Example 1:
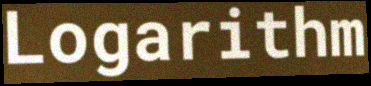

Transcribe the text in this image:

Logarithm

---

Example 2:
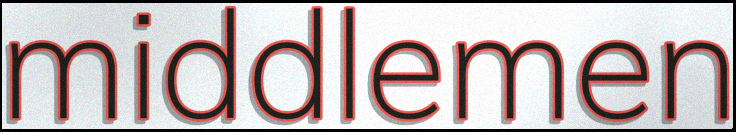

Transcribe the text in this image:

middlemen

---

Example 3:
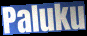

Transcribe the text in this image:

Paluku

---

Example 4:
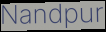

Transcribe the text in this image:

Nandpur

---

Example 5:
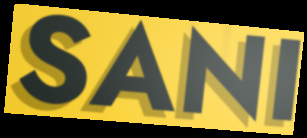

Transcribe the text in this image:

SANI